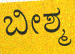
ಬೀಶ್ಮ